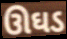
ઊઘડ